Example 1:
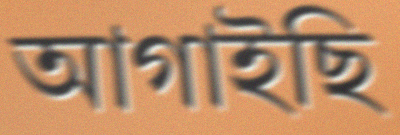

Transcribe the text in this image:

আগাইছি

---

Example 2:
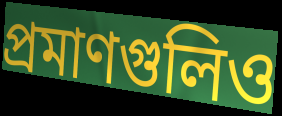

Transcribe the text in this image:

প্রমাণগুলিও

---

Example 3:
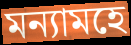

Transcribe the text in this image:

মন্যামহে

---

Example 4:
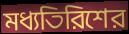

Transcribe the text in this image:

মধ্যতিরিশের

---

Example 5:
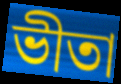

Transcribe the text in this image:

ভীতা